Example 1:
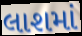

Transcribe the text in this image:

લાશમાં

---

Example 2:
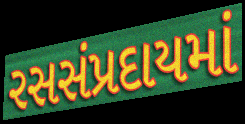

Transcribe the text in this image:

રસસંપ્રદાયમાં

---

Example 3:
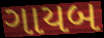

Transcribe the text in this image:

ગાયબ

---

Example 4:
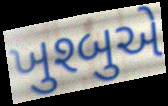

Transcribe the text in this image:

ખુશ્બુએ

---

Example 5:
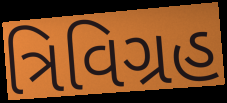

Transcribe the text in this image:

ત્રિવિગ્રહ